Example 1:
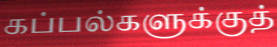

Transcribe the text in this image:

கப்பல்களுக்குத்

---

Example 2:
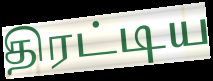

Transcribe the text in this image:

திரட்டிய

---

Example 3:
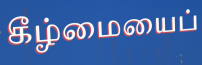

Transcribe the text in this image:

கீழ்மையைப்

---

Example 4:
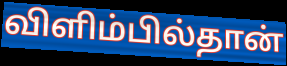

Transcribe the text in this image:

விளிம்பில்தான்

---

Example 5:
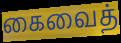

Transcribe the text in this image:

கைவைத்